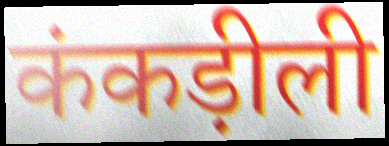
कंकड़ीली